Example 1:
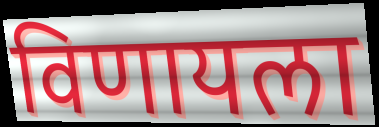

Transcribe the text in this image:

विणायला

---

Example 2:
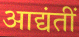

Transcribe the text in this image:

आद्यंतीं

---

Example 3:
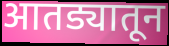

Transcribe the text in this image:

आतड्यातून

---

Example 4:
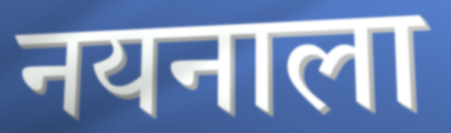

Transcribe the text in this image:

नयनाला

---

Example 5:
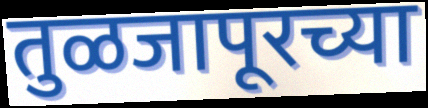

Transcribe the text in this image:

तुळजापूरच्या